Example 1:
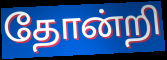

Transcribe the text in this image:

தோன்றி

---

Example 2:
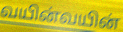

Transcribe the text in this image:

வயின்வயின்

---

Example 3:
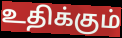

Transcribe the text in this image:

உதிக்கும்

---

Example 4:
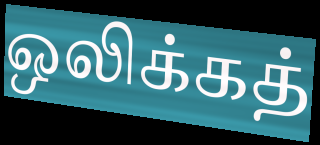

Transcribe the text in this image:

ஒலிக்கத்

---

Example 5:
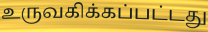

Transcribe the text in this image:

உருவகிக்கப்பட்டது